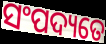
ସଂପଦ୍ୟତେ